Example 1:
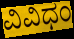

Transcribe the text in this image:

ವಿವಿಧಂ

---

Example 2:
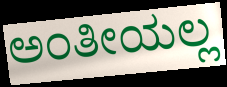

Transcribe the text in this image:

ಅಂತೀಯಲ್ಲ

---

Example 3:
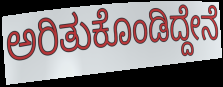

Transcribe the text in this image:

ಅರಿತುಕೊಂಡಿದ್ದೇನೆ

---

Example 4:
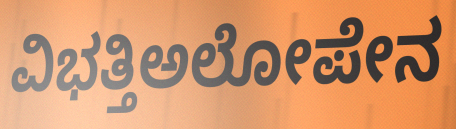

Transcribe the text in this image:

ವಿಭತ್ತಿಅಲೋಪೇನ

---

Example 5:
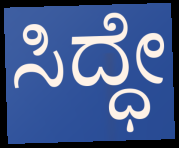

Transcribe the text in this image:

ಸಿದ್ಧೇ